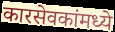
कारसेवकांमध्ये